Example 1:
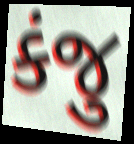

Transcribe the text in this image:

કંજુ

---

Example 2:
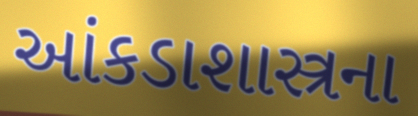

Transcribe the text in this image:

આંકડાશાસ્ત્રના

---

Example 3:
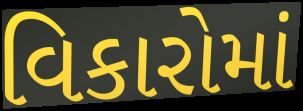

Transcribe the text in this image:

વિકારોમાં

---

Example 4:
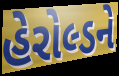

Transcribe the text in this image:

હેરોલ્ડને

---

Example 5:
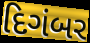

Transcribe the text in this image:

દિગંબર